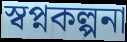
স্বপ্নকল্পনা